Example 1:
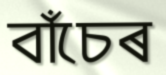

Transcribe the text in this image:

বাঁচেৰ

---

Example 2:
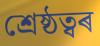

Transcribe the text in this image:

শ্ৰেষ্ঠত্বৰ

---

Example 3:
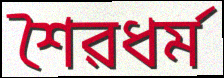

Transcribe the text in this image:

শৈৱধৰ্ম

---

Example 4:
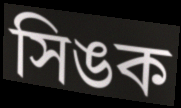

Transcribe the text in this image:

সিঙক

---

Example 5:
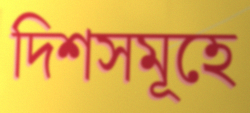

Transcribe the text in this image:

দিশসমূহে